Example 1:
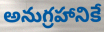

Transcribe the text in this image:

అనుగ్రహానికే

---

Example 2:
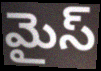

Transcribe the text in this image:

మైస్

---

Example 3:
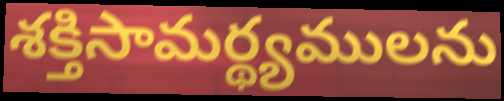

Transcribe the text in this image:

శక్తిసామర్థ్యములను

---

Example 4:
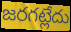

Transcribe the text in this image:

జరగట్లేదు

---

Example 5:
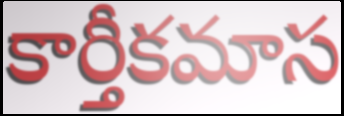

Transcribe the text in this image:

కార్తీకమాస